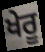
ਖੇਰੂ